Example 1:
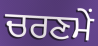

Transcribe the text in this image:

ਚਰਣਮੇਂ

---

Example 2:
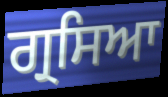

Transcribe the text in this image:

ਗ੍ਰਸਿਆ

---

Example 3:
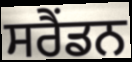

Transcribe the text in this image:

ਸਰੈਂਡਨ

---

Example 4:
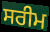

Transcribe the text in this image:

ਸਰੀਮ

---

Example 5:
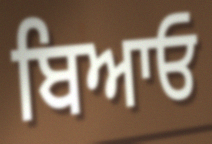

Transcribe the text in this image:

ਬਿਆਓ